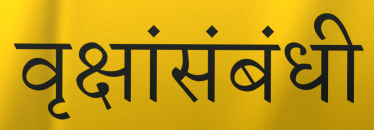
वृक्षांसंबंधी